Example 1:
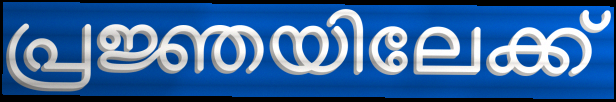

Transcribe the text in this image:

പ്രജ്ഞയിലേക്ക്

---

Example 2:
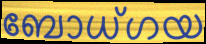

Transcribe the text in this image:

ബോധ്ഗയ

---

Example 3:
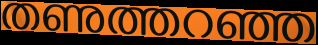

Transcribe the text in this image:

തണുത്തറഞ്ഞ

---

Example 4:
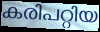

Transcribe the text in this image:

കരിപറ്റിയ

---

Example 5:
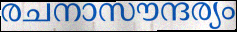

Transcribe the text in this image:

രചനാസൗന്ദര്യം